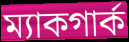
ম্যাকগার্ক